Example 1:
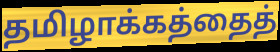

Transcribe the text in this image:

தமிழாக்கத்தைத்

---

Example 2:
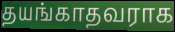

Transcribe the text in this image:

தயங்காதவராக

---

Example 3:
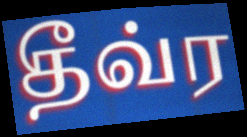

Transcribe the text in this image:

தீவ்ர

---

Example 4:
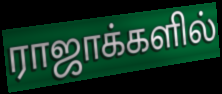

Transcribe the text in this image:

ராஜாக்களில்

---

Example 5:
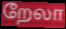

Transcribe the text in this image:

றேலா